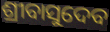
ଶ୍ରୀବାସୁଦେବ